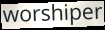
worshiper